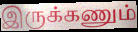
இருக்கணும்